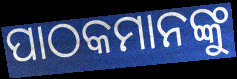
ପାଠକମାନଙ୍କୁ